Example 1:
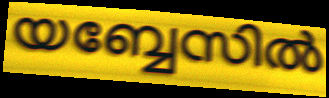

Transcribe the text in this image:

യബ്ബേസിൽ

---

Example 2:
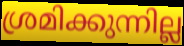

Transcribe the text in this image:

ശ്രമിക്കുന്നില്ല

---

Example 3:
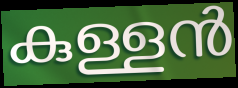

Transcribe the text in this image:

കുള്ളൻ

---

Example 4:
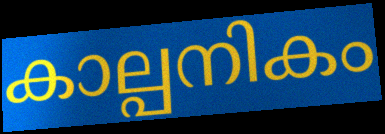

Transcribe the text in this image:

കാല്പനികം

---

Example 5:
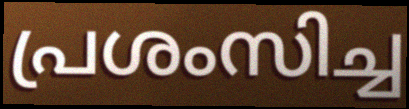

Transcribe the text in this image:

പ്രശംസിച്ച